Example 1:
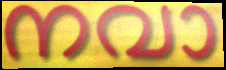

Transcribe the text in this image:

നവാ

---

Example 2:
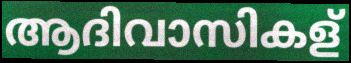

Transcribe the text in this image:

ആദിവാസികള്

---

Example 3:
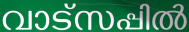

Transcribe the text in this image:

വാട്സപ്പിൽ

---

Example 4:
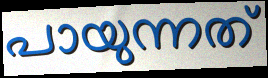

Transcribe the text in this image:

പായുന്നത്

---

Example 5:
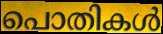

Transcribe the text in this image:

പൊതികൾ